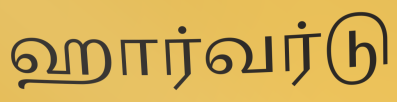
ஹார்வர்டு